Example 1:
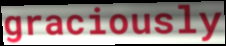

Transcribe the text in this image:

graciously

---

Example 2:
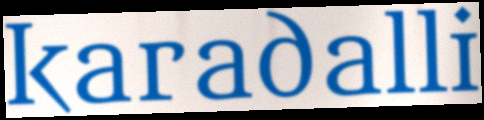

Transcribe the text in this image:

karadalli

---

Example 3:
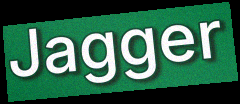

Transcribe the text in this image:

Jagger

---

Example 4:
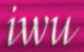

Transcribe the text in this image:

iwu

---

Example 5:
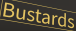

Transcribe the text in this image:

Bustards